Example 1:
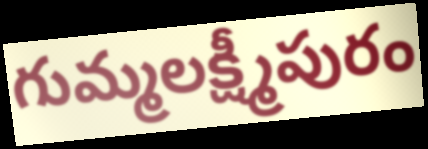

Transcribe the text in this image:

గుమ్మలక్ష్మీపురం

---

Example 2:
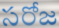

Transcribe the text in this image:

సరోజ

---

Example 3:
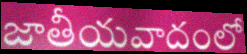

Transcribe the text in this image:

జాతీయవాదంలో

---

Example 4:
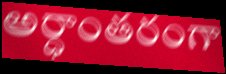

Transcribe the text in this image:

అర్ధాంతరంగా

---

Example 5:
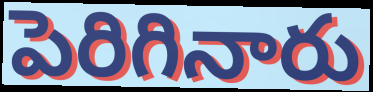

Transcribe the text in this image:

పెరిగినారు